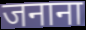
जनाना